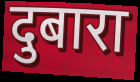
दुबारा